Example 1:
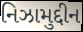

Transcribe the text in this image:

નિઝામુદ્દીન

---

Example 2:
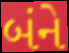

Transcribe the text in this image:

બંને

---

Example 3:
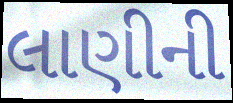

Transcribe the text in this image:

લાણીની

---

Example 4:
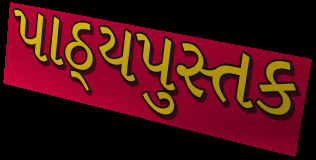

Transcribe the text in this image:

પાઠ્યપુસ્તક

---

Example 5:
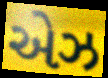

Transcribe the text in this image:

એઝ